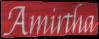
Amirtha